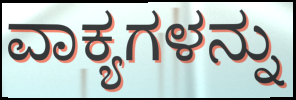
ವಾಕ್ಯಗಳನ್ನು